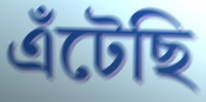
এঁটেছি